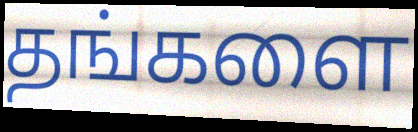
தங்களை